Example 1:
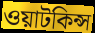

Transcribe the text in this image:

ওয়াটকিন্স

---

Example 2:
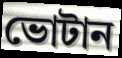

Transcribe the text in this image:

ভোটান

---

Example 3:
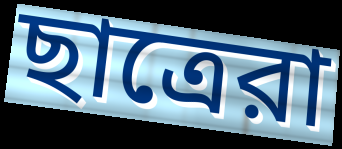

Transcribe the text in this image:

ছাত্রেরা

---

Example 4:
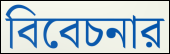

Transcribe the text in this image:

বিবেচনার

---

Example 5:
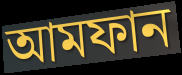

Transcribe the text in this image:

আমফান